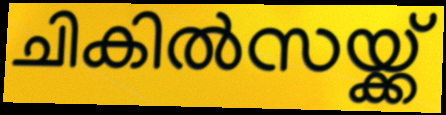
ചികിൽസയ്ക്ക്